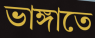
ভাঙ্গাতে